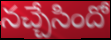
నచ్చేసిందో